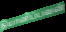
தியானிப்பவன்